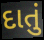
દાતું